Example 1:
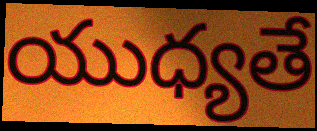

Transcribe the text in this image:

యుధ్యతే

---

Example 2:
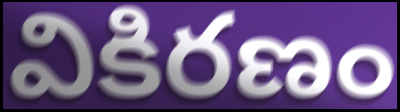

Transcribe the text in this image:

వికిరణం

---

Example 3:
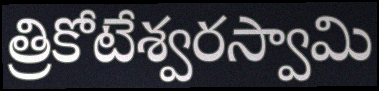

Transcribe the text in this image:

త్రికోటేశ్వరస్వామి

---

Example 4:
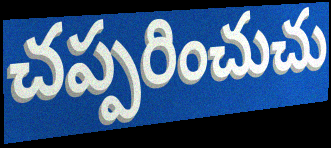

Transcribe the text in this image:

చప్పరించుచు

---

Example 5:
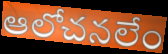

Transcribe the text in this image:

ఆలోచనలేం